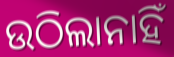
ଉଠିଲାନାହିଁ